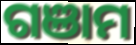
ଗଞାମ